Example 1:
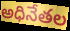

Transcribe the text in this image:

అధినేతల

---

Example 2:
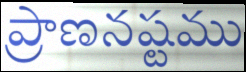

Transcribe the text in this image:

ప్రాణనష్టము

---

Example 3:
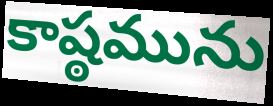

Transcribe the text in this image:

కాష్ఠమును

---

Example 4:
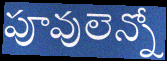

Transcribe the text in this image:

పూవులెన్నో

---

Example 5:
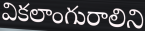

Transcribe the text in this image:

వికలాంగురాలిని